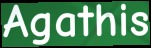
Agathis